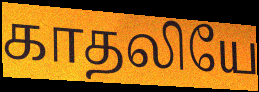
காதலியே